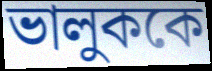
ভালুককে